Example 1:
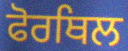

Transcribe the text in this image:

ਫੋਰਥਿਲ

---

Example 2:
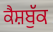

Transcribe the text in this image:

ਕੈਸ਼ਬੁੱਕ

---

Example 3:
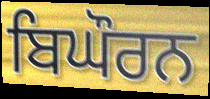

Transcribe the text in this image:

ਬਿਘੌਰਨ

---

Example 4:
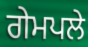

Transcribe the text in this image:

ਗੇਮਪਲੇ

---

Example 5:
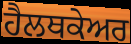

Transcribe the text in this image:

ਹੈਲਥਕੇਅਰ